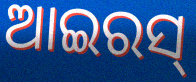
ଆଇରସ୍